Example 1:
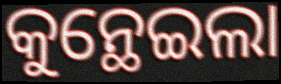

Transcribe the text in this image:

କୁନ୍ଥେଇଲା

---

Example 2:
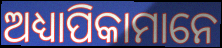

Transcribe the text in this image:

ଅଧ୍ୟାପିକାମାନେ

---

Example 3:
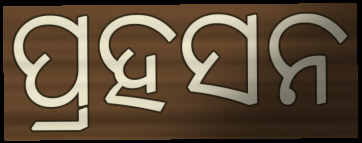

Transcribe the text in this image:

ପ୍ରହସନ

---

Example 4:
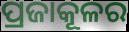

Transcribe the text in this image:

ପ୍ରଜାକୂଳର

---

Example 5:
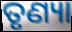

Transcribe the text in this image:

ତୃଣ୍ୟା